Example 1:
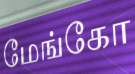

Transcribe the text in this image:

மேங்கோ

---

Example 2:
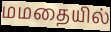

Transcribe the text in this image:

மமதையில்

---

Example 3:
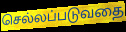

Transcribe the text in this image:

செல்லப்படுவதை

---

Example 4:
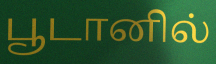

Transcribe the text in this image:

பூடானில்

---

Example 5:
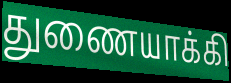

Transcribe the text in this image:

துணையாக்கி